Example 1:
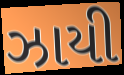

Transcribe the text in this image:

ઝાયી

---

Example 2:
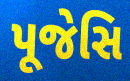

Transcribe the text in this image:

પૂજેસિ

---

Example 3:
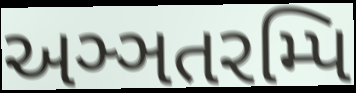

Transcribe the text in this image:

અઞ્ઞતરમ્પિ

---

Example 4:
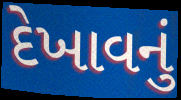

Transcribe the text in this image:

દેખાવનું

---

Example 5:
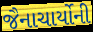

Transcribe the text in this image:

જૈનાચાર્યોની